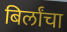
बिर्लांचा